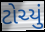
ટોચ્યું